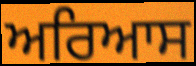
ਅਰਿਆਸ